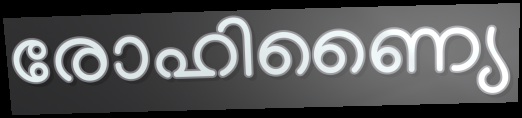
രോഹിണ്യൈ